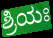
ಶ್ರಿಯಃ